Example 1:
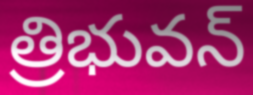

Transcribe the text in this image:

త్రిభువన్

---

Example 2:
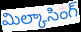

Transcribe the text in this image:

మిల్కాసింగ్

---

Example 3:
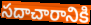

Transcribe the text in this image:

సదాచారానికి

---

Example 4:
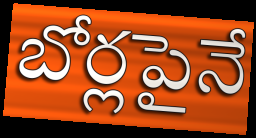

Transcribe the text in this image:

బోర్లపైనే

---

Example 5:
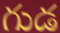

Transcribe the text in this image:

గుడ